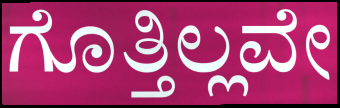
ಗೊತ್ತಿಲ್ಲವೇ